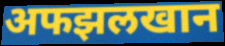
अफझलखान